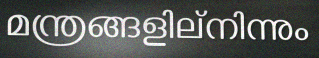
മന്ത്രങ്ങളില്നിന്നും